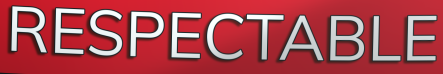
RESPECTABLE